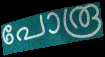
പോരൂ